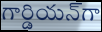
గార్డియన్‌గా